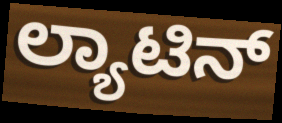
ಲ್ಯಾಟಿನ್